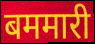
बममारी